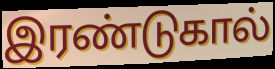
இரண்டுகால்